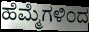
ಹೆಮ್ಮೆಗಳಿಂದ